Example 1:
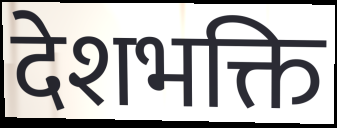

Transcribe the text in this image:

देशभक्ति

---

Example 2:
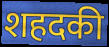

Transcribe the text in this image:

शहदकी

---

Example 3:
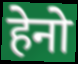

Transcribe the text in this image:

हेनो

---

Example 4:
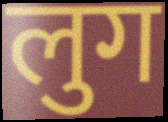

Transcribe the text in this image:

लुग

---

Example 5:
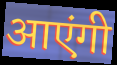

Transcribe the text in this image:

आएंगी